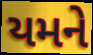
યમને